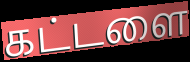
கட்டளை